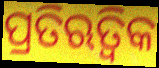
ପ୍ରତିଋତ୍ୱିକ